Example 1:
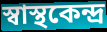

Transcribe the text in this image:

স্বাস্থকেন্দ্র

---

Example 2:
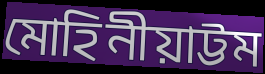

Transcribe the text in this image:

মোহিনীয়াট্টম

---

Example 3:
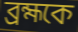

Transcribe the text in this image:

ব্রহ্মকে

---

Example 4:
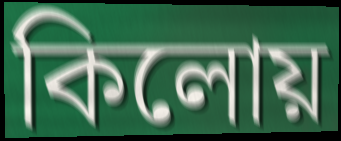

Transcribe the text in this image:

কিলোয়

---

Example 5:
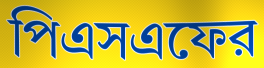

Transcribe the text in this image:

পিএসএফের